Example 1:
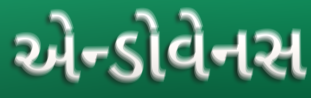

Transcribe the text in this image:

એન્ડોવેનસ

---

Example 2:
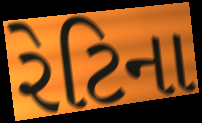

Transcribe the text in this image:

રેટિના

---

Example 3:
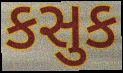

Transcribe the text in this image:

કસુક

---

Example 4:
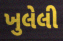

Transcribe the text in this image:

ખુલેલી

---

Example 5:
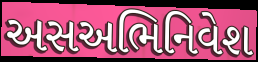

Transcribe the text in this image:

અસઅભિનિવેશ